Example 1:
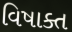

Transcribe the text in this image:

વિષાક્ત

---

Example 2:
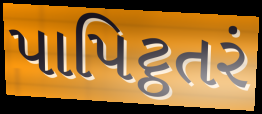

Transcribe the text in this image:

પાપિટ્ઠતરં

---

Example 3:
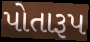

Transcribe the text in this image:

પોતારૂપ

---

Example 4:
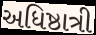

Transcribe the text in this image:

અધિષ્ઠાત્રી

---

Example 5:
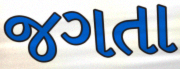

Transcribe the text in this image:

જગતા